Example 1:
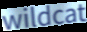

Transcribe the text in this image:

wildcat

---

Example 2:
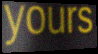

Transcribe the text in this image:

yours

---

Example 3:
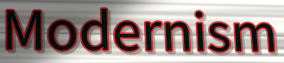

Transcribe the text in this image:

Modernism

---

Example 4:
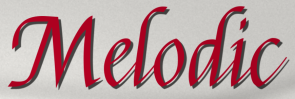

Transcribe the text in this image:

Melodic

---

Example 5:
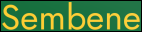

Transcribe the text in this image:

Sembene